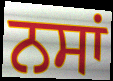
ਨਸਾਂ